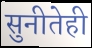
सुनीतेही